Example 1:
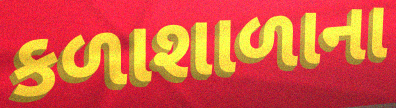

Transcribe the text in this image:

કળાશાળાના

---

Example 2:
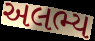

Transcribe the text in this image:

અલભ્ય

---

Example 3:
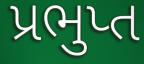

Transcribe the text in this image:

પ્રભુપ્ત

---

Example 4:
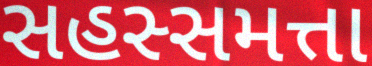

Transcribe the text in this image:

સહસ્સમત્તા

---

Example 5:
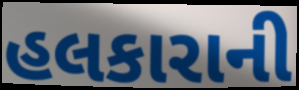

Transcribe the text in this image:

હલકારાની